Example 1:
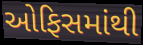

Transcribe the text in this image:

ઓફિસમાંથી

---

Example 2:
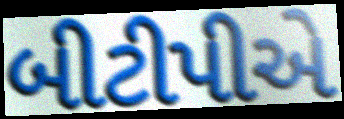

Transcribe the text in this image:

બીટીપીએ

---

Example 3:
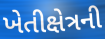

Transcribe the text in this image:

ખેતીક્ષેત્રની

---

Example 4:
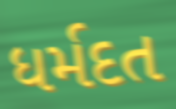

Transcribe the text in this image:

ધર્મદત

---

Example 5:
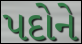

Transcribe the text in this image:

પદોને